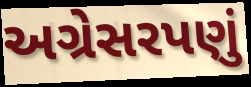
અગ્રેસરપણું